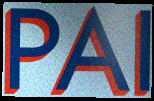
PAI